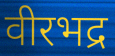
वीरभद्र